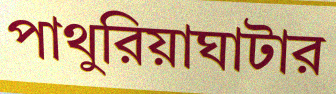
পাথুরিয়াঘাটার